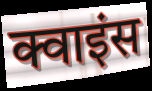
क्वाइंस